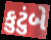
કુટુંબે